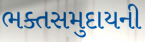
ભક્તસમુદાયની